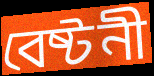
বেষ্টনী